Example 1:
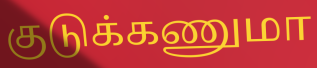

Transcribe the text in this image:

குடுக்கணுமா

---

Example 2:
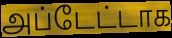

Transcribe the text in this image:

அப்டேட்டாக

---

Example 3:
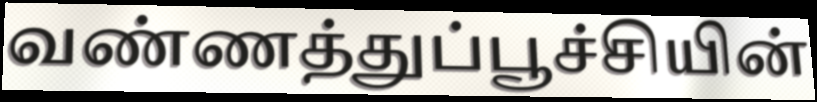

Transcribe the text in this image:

வண்ணத்துப்பூச்சியின்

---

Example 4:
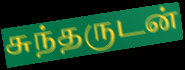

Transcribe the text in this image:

சுந்தருடன்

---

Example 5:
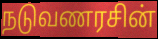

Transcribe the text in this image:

நடுவணரசின்